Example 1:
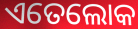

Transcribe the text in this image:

ଏତେଲୋକ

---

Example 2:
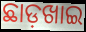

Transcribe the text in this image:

ଛାଡ଼ଖାଇ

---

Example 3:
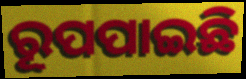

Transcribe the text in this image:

ରୂପପାଇଛି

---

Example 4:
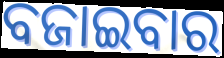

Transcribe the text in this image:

ବଜାଇବାର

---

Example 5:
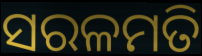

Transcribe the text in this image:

ସରଳମତି